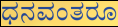
ಧನವಂತರೂ